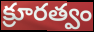
క్రూరత్వం